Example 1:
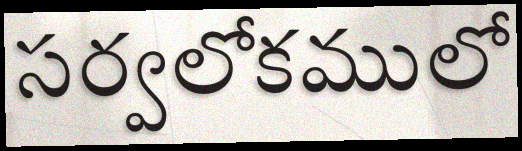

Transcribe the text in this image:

సర్వలోకములో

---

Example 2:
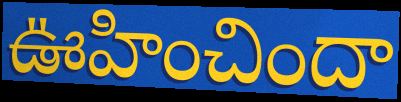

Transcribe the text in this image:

ఊహించిందా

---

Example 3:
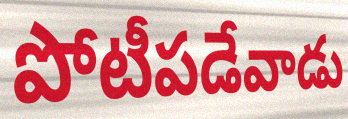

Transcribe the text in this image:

పోటీపడేవాడు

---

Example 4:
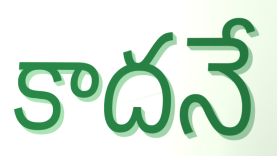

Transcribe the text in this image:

కాదనే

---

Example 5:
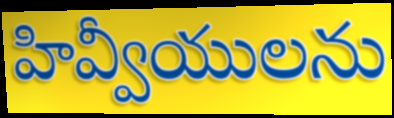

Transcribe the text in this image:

హివ్వీయులను